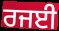
ਰਜਈ